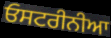
ਓਸਟਰੀਨੀਆ